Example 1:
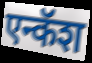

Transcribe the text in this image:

एन्कॅश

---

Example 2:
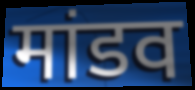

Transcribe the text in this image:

मांडव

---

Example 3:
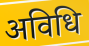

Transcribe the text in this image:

अविधि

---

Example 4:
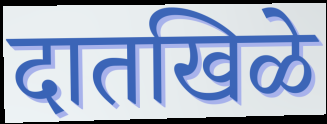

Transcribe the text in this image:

दातखिळे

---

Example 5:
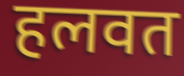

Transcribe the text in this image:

हलवत